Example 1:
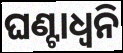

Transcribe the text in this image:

ଘଣ୍ଟାଧ୍ୱନି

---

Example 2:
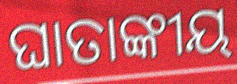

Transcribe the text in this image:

ଘାତାଙ୍କୀୟ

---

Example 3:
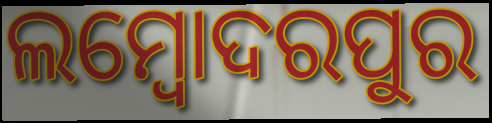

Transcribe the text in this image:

ଲମ୍ବୋଦରପୁର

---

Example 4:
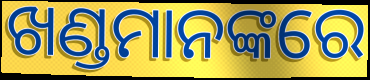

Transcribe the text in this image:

ଖଣ୍ଡମାନଙ୍କରେ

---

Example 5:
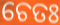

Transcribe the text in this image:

ଚେତଃ